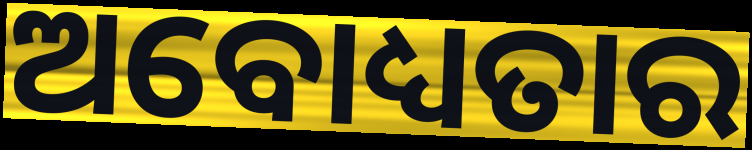
ଅବୋଧ୍ୟତାର